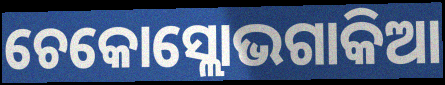
ଚେକୋସ୍ଲୋଭଗାକିଆ